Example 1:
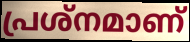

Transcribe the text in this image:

പ്രശ്നമാണ്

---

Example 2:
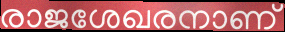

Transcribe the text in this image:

രാജശേഖരനാണ്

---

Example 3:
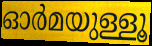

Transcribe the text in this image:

ഓർമയുള്ളൂ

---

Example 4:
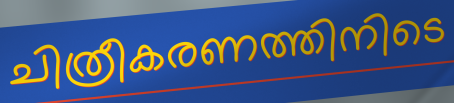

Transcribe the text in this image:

ചിത്രീകരണത്തിനിടെ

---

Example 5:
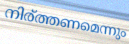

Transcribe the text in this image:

നിര്ത്തണമെന്നും